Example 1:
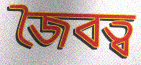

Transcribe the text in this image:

জৈবত্ব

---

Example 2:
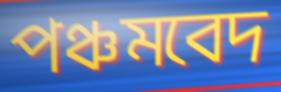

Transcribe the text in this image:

পঞ্চমবেদ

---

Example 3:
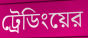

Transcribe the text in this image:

ট্রেডিংয়ের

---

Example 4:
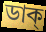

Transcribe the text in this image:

ডাক্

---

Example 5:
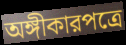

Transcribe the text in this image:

অঙ্গীকারপত্রে